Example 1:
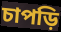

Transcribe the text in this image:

চাপড়ি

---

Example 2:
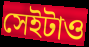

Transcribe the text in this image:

সেইটাও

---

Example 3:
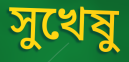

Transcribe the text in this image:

সুখেষু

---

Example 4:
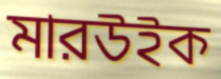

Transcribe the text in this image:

মারউইক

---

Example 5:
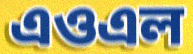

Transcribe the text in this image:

এওএল